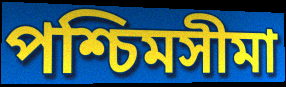
পশ্চিমসীমা